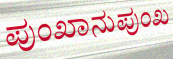
ಪುಂಖಾನುಪುಂಖ